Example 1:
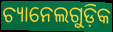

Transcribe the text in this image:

ଚ୍ୟାନେଲଗୁଡ଼ିକ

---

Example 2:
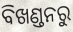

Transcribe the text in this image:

ବିଖଣ୍ଡନରୁ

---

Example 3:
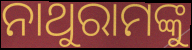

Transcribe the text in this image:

ନାଥୁରାମଙ୍କୁ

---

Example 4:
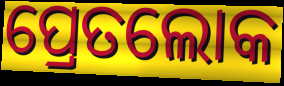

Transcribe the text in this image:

ପ୍ରେତଲୋକ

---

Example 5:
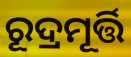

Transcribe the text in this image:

ରୂଦ୍ରମୂର୍ତ୍ତି